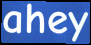
ahey